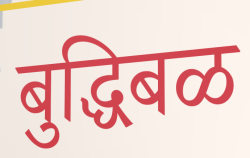
बुद्धिबळ